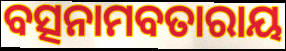
ବତ୍ସନାମବତାରାୟ